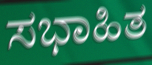
ಸಭಾಹಿತ